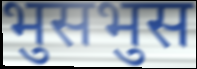
भुसभुस